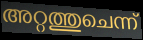
അറ്റത്തുചെന്ന്